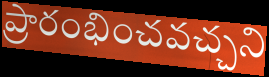
ప్రారంభించవచ్చని